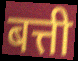
बत्ती